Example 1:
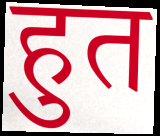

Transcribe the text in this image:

हुत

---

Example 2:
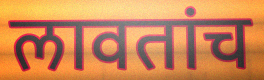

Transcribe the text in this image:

लावतांच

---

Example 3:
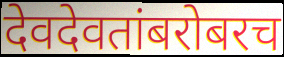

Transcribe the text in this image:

देवदेवतांबरोबरच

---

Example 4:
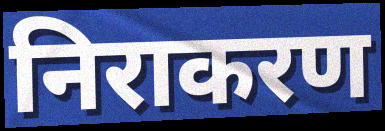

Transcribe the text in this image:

निराकरण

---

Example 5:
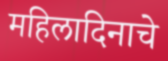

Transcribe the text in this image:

महिलादिनाचे